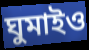
ঘুমাইও